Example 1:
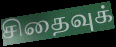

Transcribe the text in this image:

சிதைவுக்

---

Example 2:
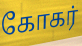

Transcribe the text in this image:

கோகர்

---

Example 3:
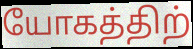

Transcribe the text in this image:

யோகத்திற்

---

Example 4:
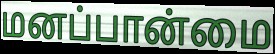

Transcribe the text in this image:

மனப்பான்மை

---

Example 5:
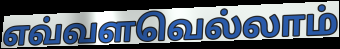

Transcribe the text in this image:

எவ்வளவெல்லாம்